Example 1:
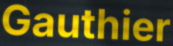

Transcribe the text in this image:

Gauthier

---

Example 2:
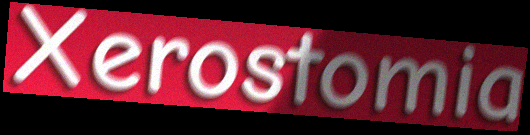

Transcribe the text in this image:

Xerostomia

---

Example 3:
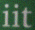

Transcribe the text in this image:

iit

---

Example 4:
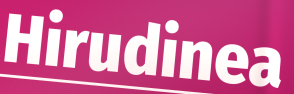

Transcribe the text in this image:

Hirudinea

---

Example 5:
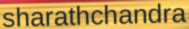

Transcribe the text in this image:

sharathchandra